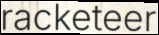
racketeer